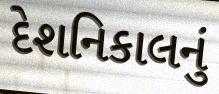
દેશનિકાલનું